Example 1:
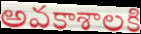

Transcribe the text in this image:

అవకాశాలకి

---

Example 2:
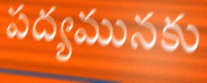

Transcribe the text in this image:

పద్యమునకు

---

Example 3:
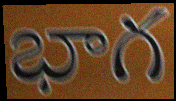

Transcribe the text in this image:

భాగ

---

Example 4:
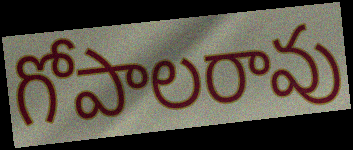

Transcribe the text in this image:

గోపాలరావు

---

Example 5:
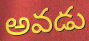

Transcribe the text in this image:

అవడు